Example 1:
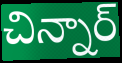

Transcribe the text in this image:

చిన్నార్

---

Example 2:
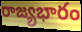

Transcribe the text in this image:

రాజ్యభారం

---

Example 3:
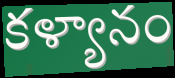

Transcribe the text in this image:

కళ్యానం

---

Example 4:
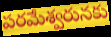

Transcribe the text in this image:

పరమేశ్వరునకు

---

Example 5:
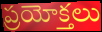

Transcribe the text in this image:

ప్రయోక్తలు